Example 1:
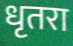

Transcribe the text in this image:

धृतरा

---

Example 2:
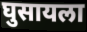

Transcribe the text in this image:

घुसायला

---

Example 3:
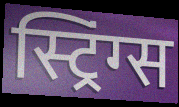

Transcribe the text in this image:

स्ट्रिंग्स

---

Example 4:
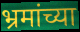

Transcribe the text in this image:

भ्रमांच्या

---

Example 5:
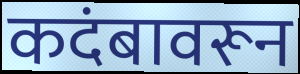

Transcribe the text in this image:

कदंबावरून